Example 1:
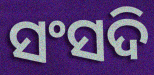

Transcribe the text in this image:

ସଂସଦି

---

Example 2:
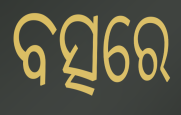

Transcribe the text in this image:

ବତ୍ସରେ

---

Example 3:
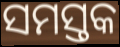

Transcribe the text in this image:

ସମସ୍ତକ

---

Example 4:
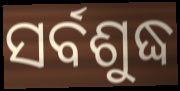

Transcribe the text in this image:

ସର୍ବଶୁଦ୍ଧ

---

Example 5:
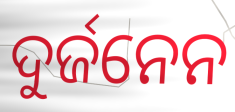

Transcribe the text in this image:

ଦୁର୍ଜନେନ